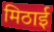
मिठाई